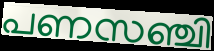
പണസഞ്ചി